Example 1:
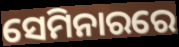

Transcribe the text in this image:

ସେମିନାରରେ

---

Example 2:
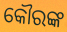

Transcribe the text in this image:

କୌରଙ୍କ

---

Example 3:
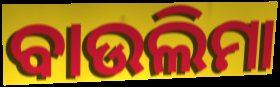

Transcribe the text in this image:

ବାଉଲିମା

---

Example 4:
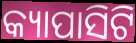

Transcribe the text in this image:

କ୍ୟାପାସିଟି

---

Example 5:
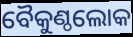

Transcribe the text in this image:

ବୈକୁଣ୍ଠଲୋକ